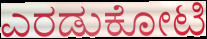
ಎರಡುಕೋಟಿ